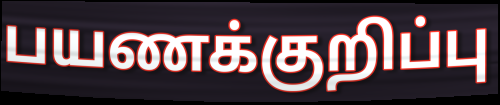
பயணக்குறிப்பு